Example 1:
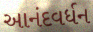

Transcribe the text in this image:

આનંદવર્ધન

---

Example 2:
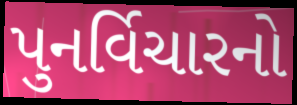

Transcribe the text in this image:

પુનર્વિચારનો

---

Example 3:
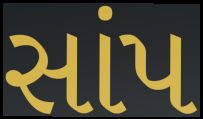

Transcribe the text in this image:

સાંપ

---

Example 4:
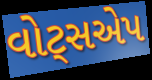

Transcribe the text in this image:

વોટ્સએપ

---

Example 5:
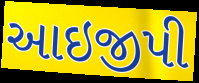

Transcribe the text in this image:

આઇજીપી